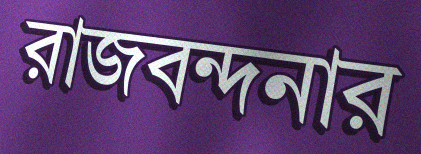
রাজবন্দনার